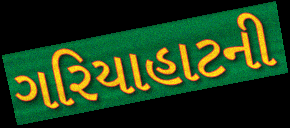
ગરિયાહાટની